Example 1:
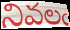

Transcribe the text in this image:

నివలఁ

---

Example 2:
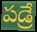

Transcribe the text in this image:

పడ్రే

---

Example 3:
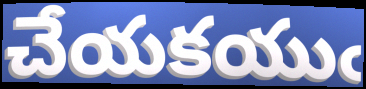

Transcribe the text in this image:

చేయకయుఁ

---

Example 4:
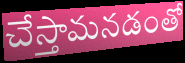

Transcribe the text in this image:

చేస్తామనడంతో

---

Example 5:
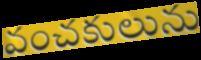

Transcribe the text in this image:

వంచకులును